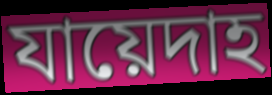
যায়েদাহ